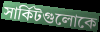
সার্কিটগুলোকে